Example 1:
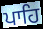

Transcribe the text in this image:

ਪਾਹਿ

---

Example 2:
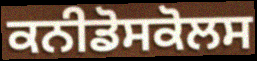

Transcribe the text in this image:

ਕਨੀਡੋਸਕੋਲਸ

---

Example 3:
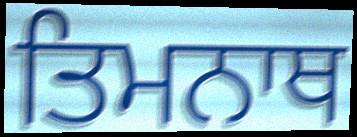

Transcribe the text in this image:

ਤਿਮਨਾਥ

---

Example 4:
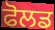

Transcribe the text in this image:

ਫੋਲਡ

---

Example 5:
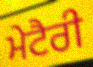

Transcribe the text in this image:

ਮੇਟੈਰੀ